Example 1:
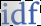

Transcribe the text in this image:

idf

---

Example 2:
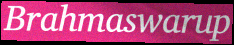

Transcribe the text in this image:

Brahmaswarup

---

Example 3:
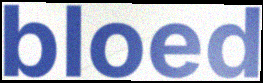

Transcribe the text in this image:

bloed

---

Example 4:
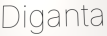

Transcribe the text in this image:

Diganta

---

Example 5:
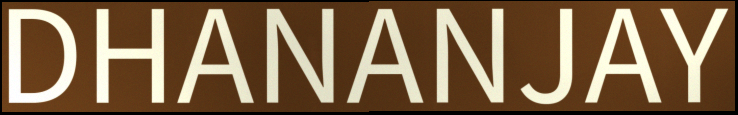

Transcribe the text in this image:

DHANANJAY